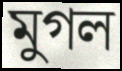
মুগল